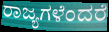
ರಾಜ್ಯಗಳೆಂದರೆ